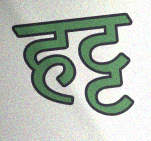
हट्ट